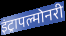
इंट्रापल्मोनरी